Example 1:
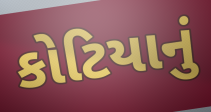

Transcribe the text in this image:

કોટિયાનું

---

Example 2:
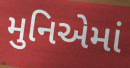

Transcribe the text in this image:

મુનિએમાં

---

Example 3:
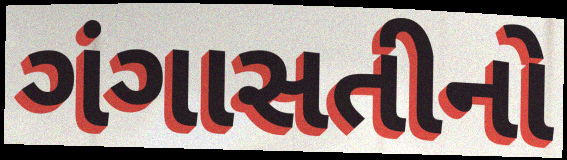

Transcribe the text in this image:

ગંગાસતીનો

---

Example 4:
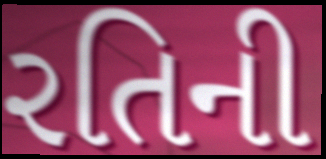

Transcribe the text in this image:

રતિની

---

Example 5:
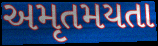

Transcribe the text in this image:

અમૃતમયતા